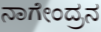
ನಾಗೇಂದ್ರನ